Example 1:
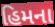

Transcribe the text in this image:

હિમના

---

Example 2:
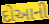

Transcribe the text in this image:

દોઆની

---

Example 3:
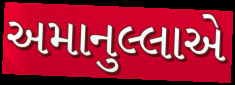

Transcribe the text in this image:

અમાનુલ્લાએ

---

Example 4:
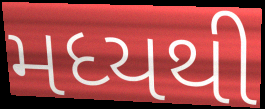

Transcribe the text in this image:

મધ્યથી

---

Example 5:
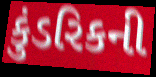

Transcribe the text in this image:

કુંડરિકની